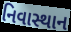
નિવાસ્થાન